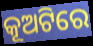
କୂଅଟିରେ